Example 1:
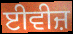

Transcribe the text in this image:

ਈਵੀਜ਼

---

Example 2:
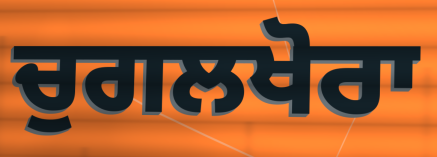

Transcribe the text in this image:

ਚੁਗਲਖੋਰਾ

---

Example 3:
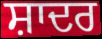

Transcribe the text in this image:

ਸ਼ਾਦਰ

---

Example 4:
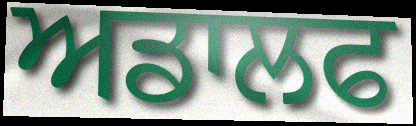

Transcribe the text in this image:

ਅਡਾਲਫ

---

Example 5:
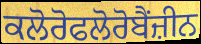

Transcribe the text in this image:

ਕਲੋਰੋਫਲੋਰੋਬੈਂਜ਼ੀਨ